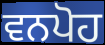
ਵਨਪੋਹ